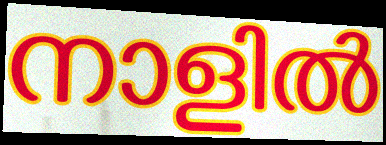
നാളിൽ